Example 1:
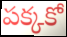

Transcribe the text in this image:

పక్కకో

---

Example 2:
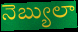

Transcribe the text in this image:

నెబ్యులా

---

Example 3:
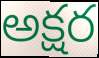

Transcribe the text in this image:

అక్షర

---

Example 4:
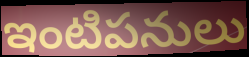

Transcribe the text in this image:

ఇంటిపనులు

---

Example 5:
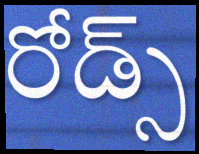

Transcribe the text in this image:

రోడ్స్